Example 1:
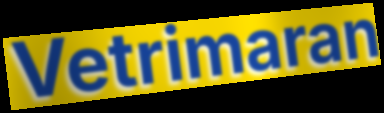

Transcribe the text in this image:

Vetrimaran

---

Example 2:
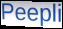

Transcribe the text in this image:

Peepli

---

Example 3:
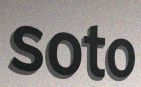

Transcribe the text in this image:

soto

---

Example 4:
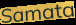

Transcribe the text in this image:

Samata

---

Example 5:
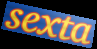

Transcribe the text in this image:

sexta